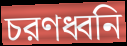
চরণধ্বনি